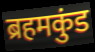
ब्रहमकुंड